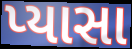
પ્યાસા